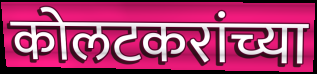
कोलटकरांच्या